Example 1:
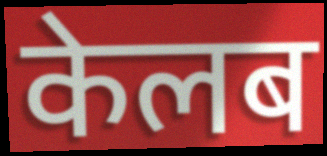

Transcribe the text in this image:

केलब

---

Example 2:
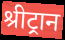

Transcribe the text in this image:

श्रीट्रान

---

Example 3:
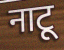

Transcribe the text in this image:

नाटू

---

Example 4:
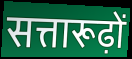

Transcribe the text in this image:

सत्तारूढ़ों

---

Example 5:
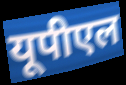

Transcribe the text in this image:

यूपीएल